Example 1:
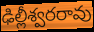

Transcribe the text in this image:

ఢిల్లీశ్వరరావు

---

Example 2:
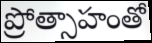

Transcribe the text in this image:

ప్రోత్సాహంతో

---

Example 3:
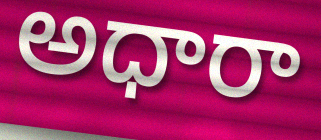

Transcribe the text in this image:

అధారా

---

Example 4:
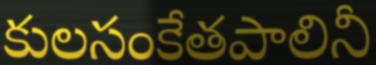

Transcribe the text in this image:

కులసంకేతపాలినీ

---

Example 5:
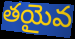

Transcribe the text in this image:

తయైవ